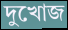
দুখোজ